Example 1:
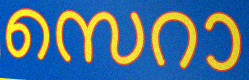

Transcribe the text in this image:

സെറാ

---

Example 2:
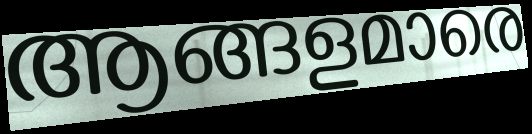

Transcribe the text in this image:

ആങ്ങളമാരെ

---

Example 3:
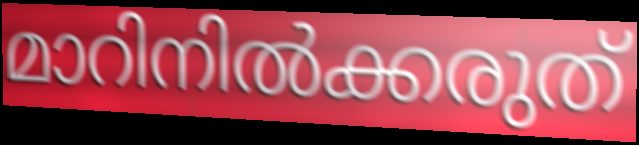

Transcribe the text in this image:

മാറിനിൽക്കരുത്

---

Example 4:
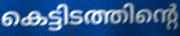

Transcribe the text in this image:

കെട്ടിടത്തിന്റെ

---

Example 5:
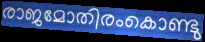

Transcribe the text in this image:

രാജമോതിരംകൊണ്ടു